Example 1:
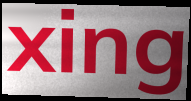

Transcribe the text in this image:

xing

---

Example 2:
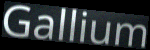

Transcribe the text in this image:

Gallium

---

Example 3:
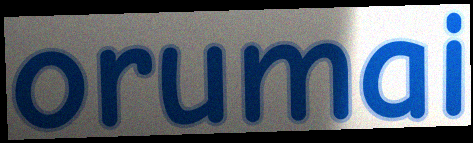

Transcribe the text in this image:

orumai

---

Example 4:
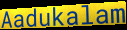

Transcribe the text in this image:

Aadukalam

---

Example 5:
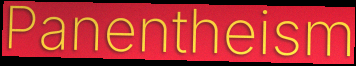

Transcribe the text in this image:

Panentheism